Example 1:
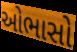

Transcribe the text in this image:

ઓભાસો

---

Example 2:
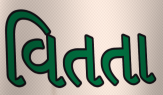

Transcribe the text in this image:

વિતતા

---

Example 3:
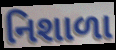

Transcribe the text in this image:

નિશાળા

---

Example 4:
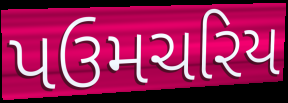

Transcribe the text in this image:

પઉમચરિય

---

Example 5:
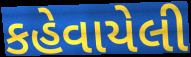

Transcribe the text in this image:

કહેવાયેલી